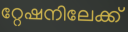
റ്റേഷനിലേക്ക്